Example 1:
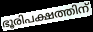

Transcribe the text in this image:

ഭൂരിപക്ഷത്തിന്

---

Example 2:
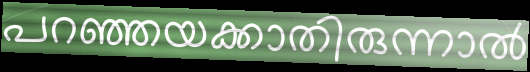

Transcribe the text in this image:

പറഞ്ഞയക്കാതിരുന്നാൽ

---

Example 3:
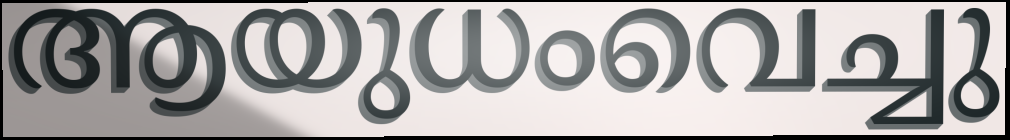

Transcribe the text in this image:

ആയുധംവെച്ചു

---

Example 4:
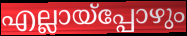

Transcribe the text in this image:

എല്ലായ്പ്പോഴും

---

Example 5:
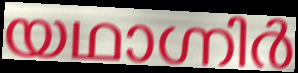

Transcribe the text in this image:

യഥാഗ്നിർ